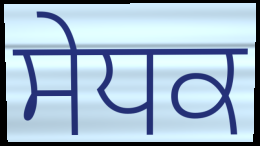
ਸੇਧਕ